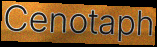
Cenotaph